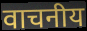
वाचनीय